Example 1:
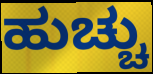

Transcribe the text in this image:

ಹುಚ್ಚು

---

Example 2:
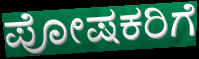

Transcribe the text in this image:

ಪೋಷಕರಿಗೆ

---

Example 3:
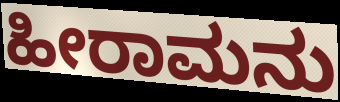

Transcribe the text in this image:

ಹೀರಾಮನು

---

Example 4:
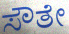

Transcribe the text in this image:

ಸೌತೇ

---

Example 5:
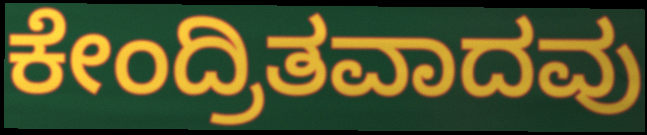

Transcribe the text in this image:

ಕೇಂದ್ರಿತವಾದವು